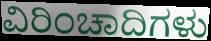
ವಿರಿಂಚಾದಿಗಳು